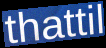
thattil